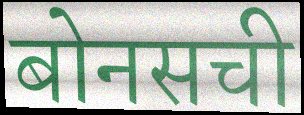
बोनसची